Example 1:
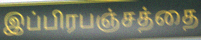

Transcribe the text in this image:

இப்பிரபஞ்சத்தை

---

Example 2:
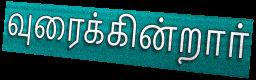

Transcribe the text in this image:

வுரைக்கின்றார்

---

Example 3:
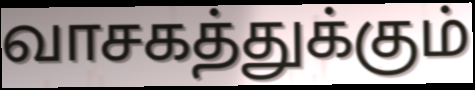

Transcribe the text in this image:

வாசகத்துக்கும்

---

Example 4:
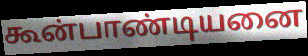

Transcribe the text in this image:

கூன்பாண்டியனை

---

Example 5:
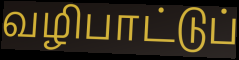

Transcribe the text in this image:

வழிபாட்டுப்